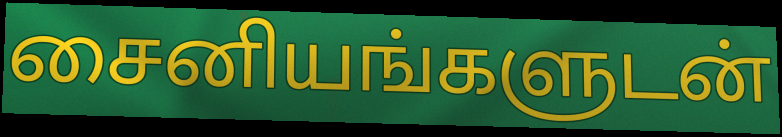
சைனியங்களுடன்